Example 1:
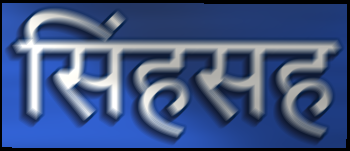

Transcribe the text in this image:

सिंहसह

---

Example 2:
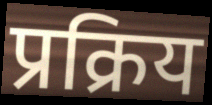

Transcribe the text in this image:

प्रक्रिय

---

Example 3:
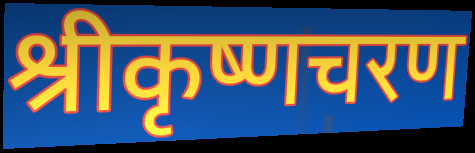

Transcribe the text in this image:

श्रीकृष्णचरण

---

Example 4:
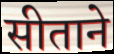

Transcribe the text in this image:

सीताने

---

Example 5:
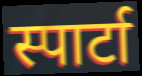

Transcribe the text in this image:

स्पार्टा